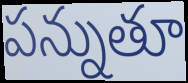
పన్నుతూ